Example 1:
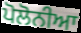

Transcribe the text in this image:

ਪੋਲੋਨੀਆ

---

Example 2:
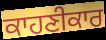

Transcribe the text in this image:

ਕਾਹਣੀਕਾਰ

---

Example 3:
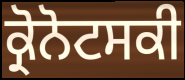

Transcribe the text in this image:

ਕ੍ਰੋਨੋਟਸਕੀ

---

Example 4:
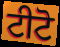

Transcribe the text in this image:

ਟੀਟੋ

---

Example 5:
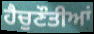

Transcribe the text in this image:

ਹੈਚੁਣੌਤੀਆਂ